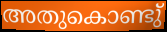
അതുകൊണ്ടു്